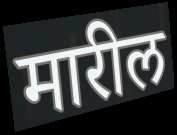
मारील